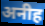
अनीह